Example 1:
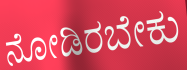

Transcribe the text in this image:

ನೋಡಿರಬೇಕು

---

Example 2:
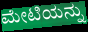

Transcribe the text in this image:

ಮೇಟಿಯನ್ನು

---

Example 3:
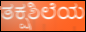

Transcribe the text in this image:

ತಕ್ಷಶಿಲೆಯ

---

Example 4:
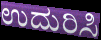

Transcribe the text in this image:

ಉದುರಿಸಿ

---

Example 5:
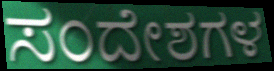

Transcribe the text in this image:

ಸಂದೇಶಗಳ